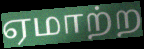
ஏமாற்ற